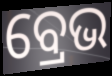
ବ୍ରେଭ